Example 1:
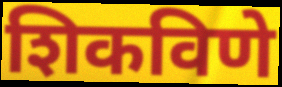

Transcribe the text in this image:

शिकविणे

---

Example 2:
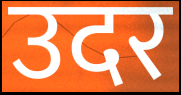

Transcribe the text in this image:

उदर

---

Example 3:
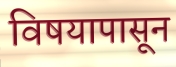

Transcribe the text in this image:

विषयापासून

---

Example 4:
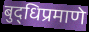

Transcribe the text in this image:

बुद्धिप्रमाणे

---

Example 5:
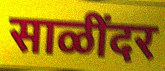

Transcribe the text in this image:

साळींदर